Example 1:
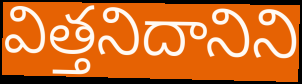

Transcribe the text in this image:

విత్తనిదానిని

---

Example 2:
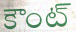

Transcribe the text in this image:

కౌంట్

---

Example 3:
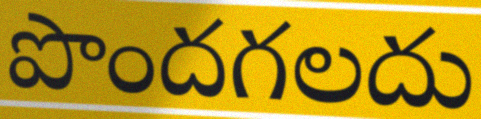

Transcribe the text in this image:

పొందగలదు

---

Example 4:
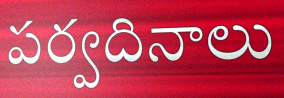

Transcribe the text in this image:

పర్వదినాలు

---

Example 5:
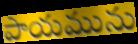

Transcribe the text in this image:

పాయమును